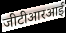
जीटीआरआई